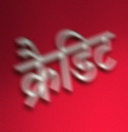
क्रैडिट